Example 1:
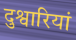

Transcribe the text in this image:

दुश्वारियां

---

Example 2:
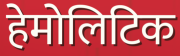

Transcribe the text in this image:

हेमोलिटिक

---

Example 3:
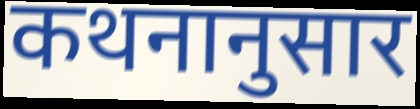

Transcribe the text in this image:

कथनानुसार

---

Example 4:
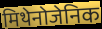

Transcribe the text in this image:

मिथेनोजेनिक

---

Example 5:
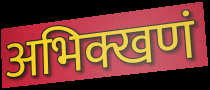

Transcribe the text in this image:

अभिक्खणं